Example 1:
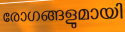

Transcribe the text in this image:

രോഗങ്ങളുമായി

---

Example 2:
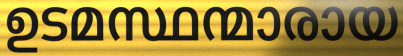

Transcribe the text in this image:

ഉടമസ്ഥന്മാരായ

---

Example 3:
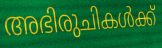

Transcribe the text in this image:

അഭിരുചികൾക്ക്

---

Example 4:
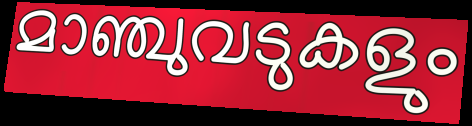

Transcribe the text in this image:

മാഞ്ചുവടുകളും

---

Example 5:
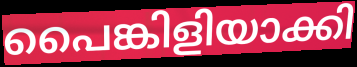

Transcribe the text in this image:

പൈങ്കിളിയാക്കി